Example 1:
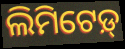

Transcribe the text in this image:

ଲିମିଟେଡ଼୍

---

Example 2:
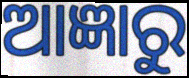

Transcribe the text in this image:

ଆଜ୍ଞାରୁ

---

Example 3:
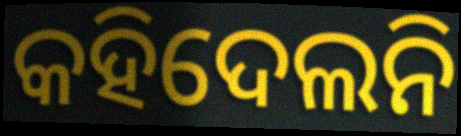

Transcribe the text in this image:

କହିଦେଲନି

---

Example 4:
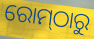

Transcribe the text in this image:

ରୋମ୍‌ଠାରୁ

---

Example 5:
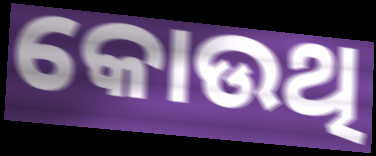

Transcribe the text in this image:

କୋଉଥି